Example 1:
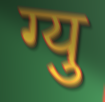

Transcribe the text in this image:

ग्यु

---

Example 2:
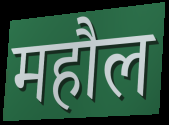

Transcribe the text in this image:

महौल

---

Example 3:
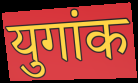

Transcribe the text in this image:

युगांक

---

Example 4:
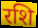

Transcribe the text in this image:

रशि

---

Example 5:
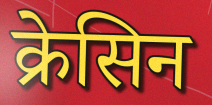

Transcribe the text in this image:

क्रेसिन